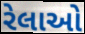
રેલાઓ